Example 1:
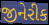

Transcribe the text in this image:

જીનેરીક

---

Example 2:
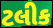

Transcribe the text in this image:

ટલીક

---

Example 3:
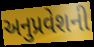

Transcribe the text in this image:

અનુપ્રવેશની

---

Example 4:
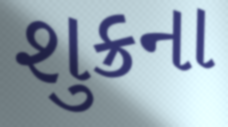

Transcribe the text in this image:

શુક્રના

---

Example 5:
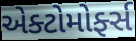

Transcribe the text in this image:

એક્ટોમોર્ફ્સ